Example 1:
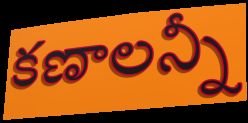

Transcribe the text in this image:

కణాలన్నీ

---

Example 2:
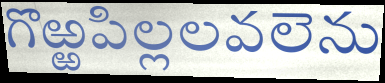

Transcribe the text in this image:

గొఱ్ఱపిల్లలవలెను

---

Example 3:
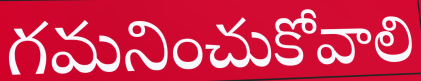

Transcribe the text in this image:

గమనించుకోవాలి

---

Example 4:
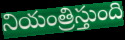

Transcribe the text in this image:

నియంత్రిస్తుంది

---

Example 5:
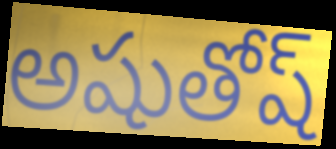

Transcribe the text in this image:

అషుతోష్